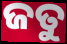
ଜତୁ